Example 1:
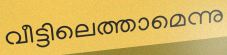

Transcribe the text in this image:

വീട്ടിലെത്താമെന്നു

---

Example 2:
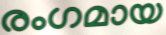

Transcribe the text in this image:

രംഗമായ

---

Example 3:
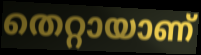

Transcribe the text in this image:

തെറ്റായാണ്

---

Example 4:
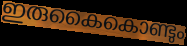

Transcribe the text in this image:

ഇരുകൈകൊണ്ടും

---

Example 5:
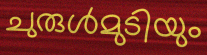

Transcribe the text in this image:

ചുരുൾമുടിയും